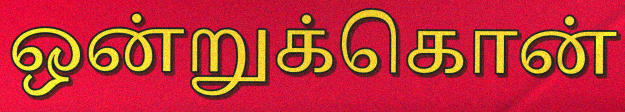
ஒன்றுக்கொன்